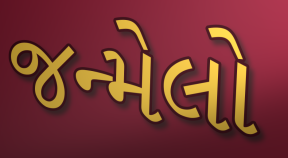
જન્મેલો